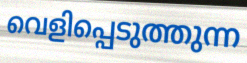
വെളിപ്പെടുത്തുന്ന